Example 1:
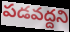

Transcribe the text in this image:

పడవద్దని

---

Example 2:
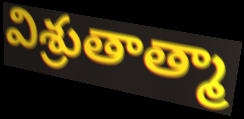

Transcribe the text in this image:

విశ్రుతాత్మా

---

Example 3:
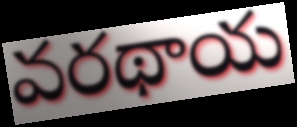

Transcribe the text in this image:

వరథాయ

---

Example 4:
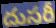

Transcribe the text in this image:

దుసరీ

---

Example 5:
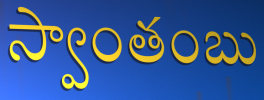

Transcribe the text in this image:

స్వాంతంబు